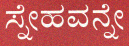
ಸ್ನೇಹವನ್ನೇ